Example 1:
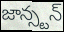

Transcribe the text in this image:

జాన్స్టన్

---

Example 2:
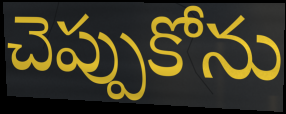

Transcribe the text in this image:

చెప్పుకోను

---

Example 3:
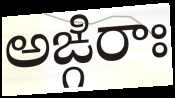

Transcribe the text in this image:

అఙ్గిరాః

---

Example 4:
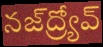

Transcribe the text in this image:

నజ్‌ద్ర్యోవ్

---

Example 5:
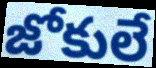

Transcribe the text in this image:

జోకులే